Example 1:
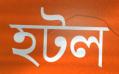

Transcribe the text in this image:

হটল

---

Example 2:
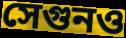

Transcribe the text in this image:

সেগুনও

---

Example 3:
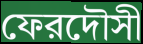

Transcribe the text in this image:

ফেরদৌসী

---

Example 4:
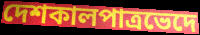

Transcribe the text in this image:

দেশকালপাত্রভেদে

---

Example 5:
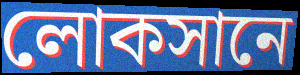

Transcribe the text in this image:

লোকসানে